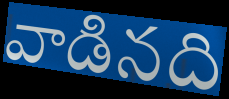
వాడినది